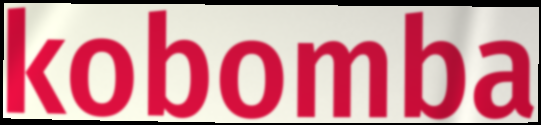
kobomba